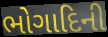
ભોગાદિની